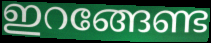
ഇറങ്ങേണ്ട